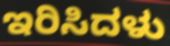
ಇರಿಸಿದಳು